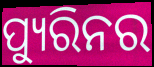
ପ୍ୟୁରିନର